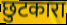
छुटकारा